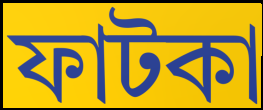
ফাটকা